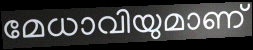
മേധാവിയുമാണ്